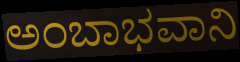
ಅಂಬಾಭವಾನಿ